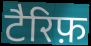
टैरिफ़